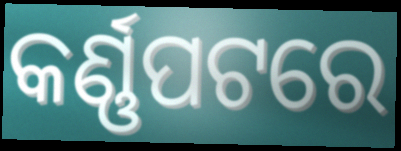
କର୍ଣ୍ଣପଟରେ